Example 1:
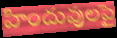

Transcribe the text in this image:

హిందువులపై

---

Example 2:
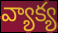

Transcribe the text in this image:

వ్యాక్య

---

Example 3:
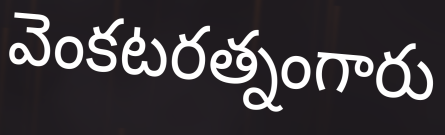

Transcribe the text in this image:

వెంకటరత్నంగారు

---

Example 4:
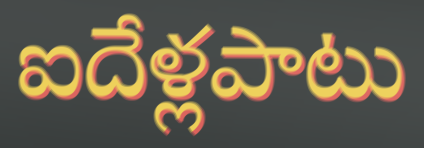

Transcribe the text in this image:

ఐదేళ్లపాటు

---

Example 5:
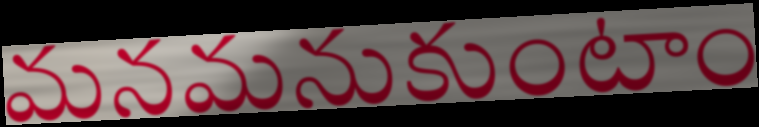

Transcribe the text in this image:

మనమనుకుంటాం